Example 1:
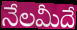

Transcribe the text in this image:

నేలమీదే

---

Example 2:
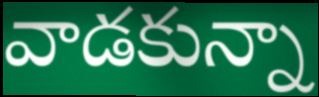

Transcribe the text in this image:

వాడకున్నా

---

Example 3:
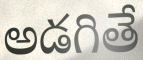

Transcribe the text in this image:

అడగితే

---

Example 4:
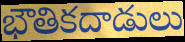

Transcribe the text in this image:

భౌతికదాడులు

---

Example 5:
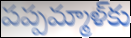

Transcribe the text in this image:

పప్పమ్మాళ్‌కు